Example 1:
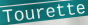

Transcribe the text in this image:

Tourette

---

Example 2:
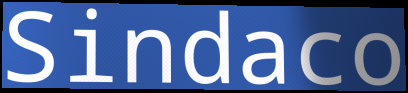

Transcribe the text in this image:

Sindaco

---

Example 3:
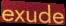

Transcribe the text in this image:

exude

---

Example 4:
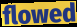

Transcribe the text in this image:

flowed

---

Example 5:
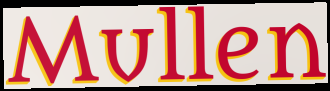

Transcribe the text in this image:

Mullen